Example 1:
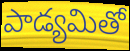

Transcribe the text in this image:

పాడ్యమితో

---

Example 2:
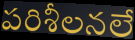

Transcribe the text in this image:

పరిశీలనలే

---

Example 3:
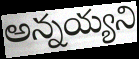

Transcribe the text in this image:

అన్నయ్యని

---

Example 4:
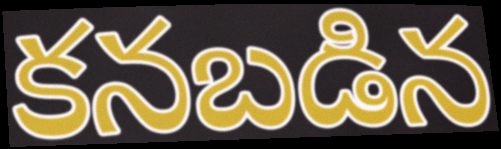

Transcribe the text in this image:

కనబడిన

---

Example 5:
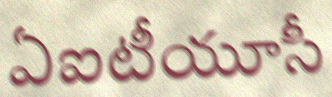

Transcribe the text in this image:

ఏఐటీయూసీ